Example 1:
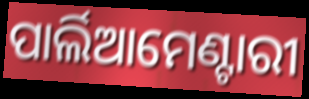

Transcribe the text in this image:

ପାର୍ଲିଆମେଣ୍ଟାରୀ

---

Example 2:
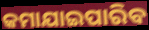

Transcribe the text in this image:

କମାଯାଇପାରିବ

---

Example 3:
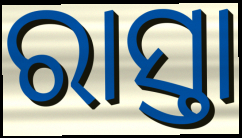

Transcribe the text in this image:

ରାସ୍ତା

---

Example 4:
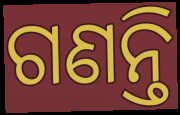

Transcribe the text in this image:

ଗଣନ୍ତି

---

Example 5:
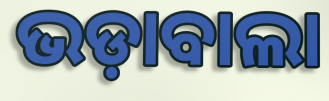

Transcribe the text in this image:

ଭଡ଼ାବାଲା